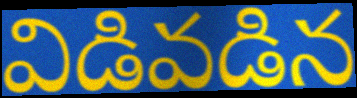
విడివడిన